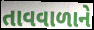
તાવવાળાને